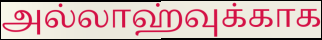
அல்லாஹ்வுக்காக